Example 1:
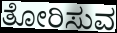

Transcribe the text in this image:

ತೋರಿಸುವ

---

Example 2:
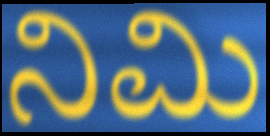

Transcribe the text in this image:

ನಿಮಿ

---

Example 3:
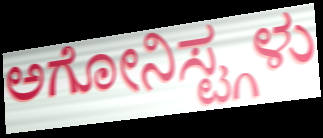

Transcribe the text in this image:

ಅಗೋನಿಸ್ಟ್ಗಳು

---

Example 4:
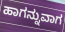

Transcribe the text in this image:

ಹಾಗನ್ನುವಾಗ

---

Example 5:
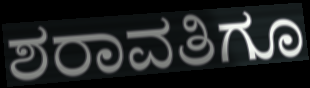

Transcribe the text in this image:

ಶರಾವತಿಗೂ